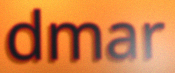
dmar